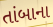
તાંબાના